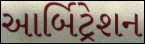
આર્બિટ્રેશન